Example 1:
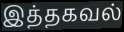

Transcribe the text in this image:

இத்தகவல்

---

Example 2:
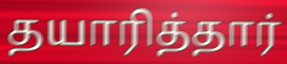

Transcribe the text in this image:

தயாரித்தார்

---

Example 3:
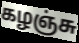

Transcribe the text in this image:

கழஞ்சு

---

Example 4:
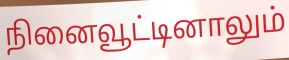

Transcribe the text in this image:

நினைவூட்டினாலும்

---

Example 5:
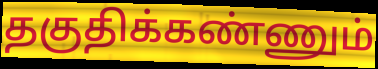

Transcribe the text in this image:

தகுதிக்கண்ணும்